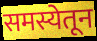
समस्येतून